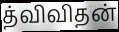
த்விவிதன்